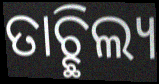
ତାଚ୍ଛିଲ୍ୟ